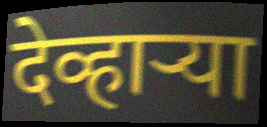
देव्हाऱ्या